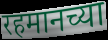
रहमानच्या